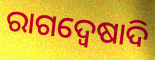
ରାଗଦ୍ୱେଷାଦି